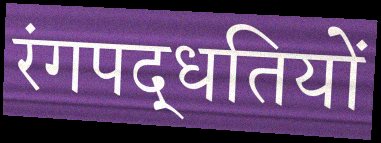
रंगपद्धतियों